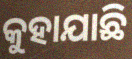
କୁହାଯାଛି